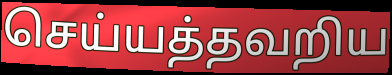
செய்யத்தவறிய